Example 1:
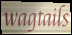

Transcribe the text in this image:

wagtails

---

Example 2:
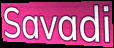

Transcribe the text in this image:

Savadi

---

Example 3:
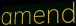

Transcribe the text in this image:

amend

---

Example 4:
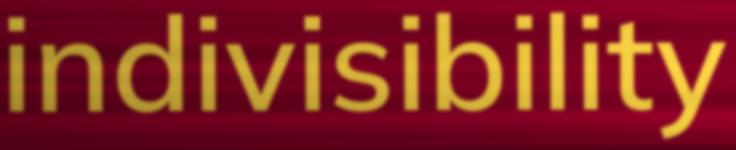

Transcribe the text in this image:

indivisibility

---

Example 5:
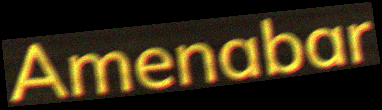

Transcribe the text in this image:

Amenabar